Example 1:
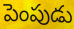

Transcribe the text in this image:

పెంపుడు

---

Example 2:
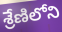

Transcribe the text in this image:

శ్రేణిలోని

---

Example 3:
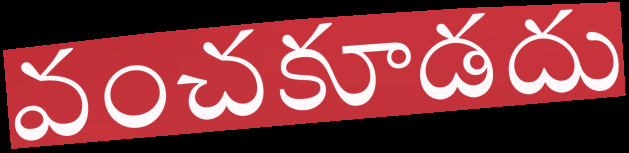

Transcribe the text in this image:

వంచకూడదు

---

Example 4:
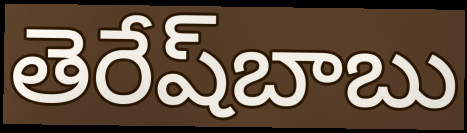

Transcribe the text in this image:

తెరేష్‌బాబు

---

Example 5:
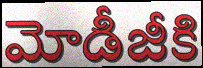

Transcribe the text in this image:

మోడీజీకి